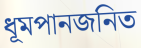
ধূমপানজনিত